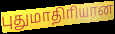
புதுமாதிரியான